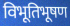
विभूतिभूषण